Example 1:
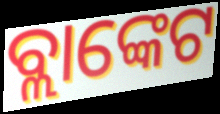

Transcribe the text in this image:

ବ୍ଲାଙ୍କେଟ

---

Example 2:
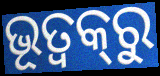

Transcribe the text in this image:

ଭୂତ୍ଵକ୍‌ରୁ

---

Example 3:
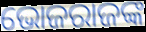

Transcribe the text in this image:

ଭୋଜରାଜଙ୍କ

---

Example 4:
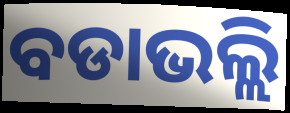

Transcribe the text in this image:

ବଡାଭଲ୍ଲି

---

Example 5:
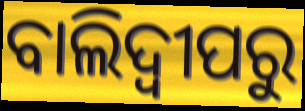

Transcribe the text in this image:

ବାଲିଦ୍ୱୀପରୁ